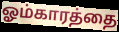
ஓம்காரத்தை